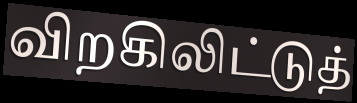
விறகிலிட்டுத்